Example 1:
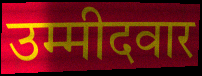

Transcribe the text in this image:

उम्‍मीदवार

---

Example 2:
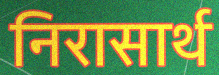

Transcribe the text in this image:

निरासार्थ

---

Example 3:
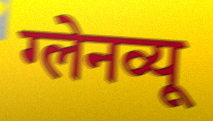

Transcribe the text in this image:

ग्लेनव्यू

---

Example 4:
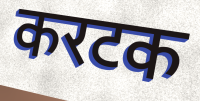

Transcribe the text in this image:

करटक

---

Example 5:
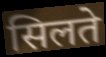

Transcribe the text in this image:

सिलते